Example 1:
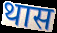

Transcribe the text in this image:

थास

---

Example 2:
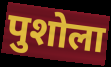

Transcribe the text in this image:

पुशोला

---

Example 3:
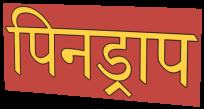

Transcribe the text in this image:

पिनड्राप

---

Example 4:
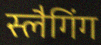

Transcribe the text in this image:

स्लैगिंग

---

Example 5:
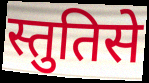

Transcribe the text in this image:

स्तुतिसे